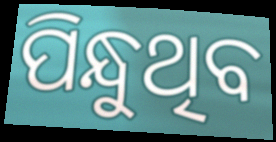
ପିନ୍ଧୁଥିବ